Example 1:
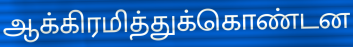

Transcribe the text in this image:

ஆக்கிரமித்துக்கொண்டன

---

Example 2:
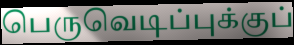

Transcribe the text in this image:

பெருவெடிப்புக்குப்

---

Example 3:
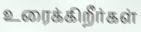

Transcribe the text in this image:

உரைக்கிறீர்கள்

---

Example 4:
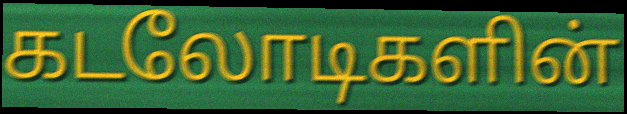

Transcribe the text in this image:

கடலோடிகளின்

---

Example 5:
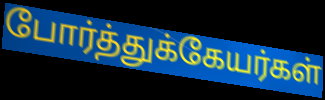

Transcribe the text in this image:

போர்த்துக்கேயர்கள்